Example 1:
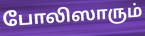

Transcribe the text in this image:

போலிஸாரும்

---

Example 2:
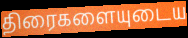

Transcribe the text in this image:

திரைகளையுடைய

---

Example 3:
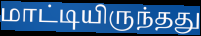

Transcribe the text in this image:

மாட்டியிருந்தது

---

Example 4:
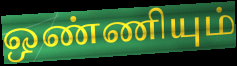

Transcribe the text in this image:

ஒண்ணியும்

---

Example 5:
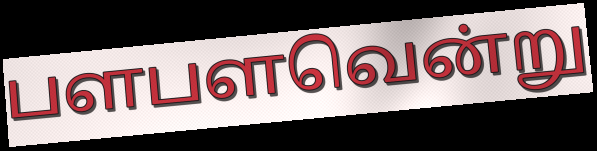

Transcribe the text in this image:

பளபளவென்று